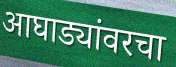
आघाड्यांवरचा